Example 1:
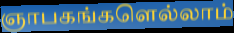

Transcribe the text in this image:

ஞாபகங்களெல்லாம்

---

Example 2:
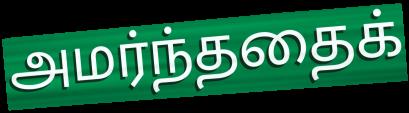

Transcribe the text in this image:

அமர்ந்ததைக்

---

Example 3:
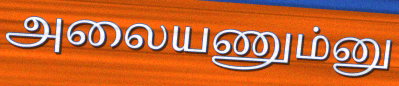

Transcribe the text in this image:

அலையணும்னு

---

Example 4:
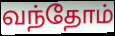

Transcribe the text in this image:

வந்தோம்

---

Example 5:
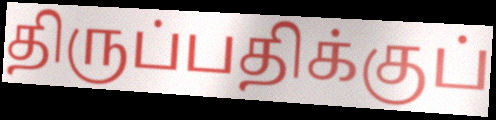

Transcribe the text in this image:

திருப்பதிக்குப்